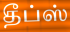
தீப்ஸ்